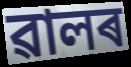
ৱালৰ